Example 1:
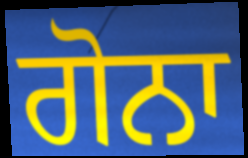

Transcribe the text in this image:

ਗੋਨਾ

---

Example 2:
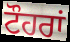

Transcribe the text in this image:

ਟੌਹਰਾਂ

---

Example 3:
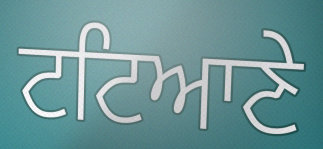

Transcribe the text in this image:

ਟਟਿਆਣੇ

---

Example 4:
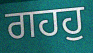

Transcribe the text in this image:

ਗਹਹੁ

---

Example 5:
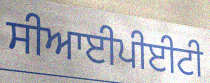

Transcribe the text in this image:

ਸੀਆਈਪੀਈਟੀ